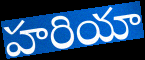
హరియా